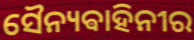
ସୈନ୍ୟଵାହିନୀର